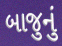
બાજુનું